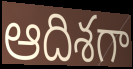
ఆదిశగా